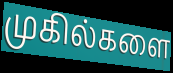
முகில்களை